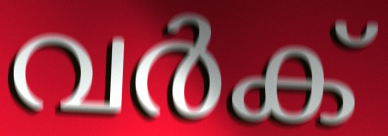
വർക്